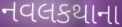
નવલકથાના